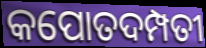
କପୋତଦମ୍ପତୀ